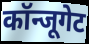
कॉन्जूगेट